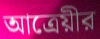
আত্রেয়ীর